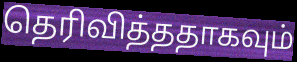
தெரிவித்ததாகவும்